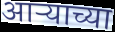
आऱ्याच्या